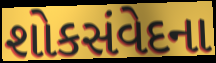
શોકસંવેદના